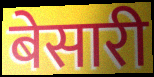
बेसारी